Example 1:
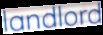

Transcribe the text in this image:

landlord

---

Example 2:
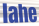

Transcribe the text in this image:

lahe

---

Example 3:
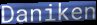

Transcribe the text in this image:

Daniken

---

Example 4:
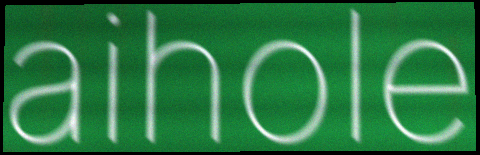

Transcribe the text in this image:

aihole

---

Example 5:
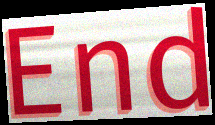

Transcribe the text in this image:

End